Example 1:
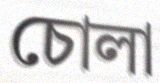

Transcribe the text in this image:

চোলা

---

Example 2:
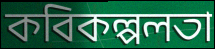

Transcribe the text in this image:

কবিকল্পলতা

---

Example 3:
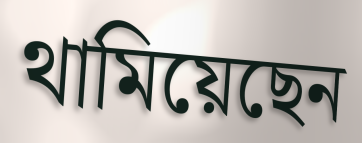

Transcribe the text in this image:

থামিয়েছেন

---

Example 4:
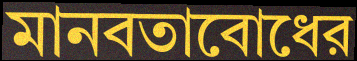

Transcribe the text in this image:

মানবতাবোধের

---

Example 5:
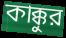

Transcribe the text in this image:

কাক্কুর